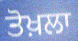
ਤੋਖ਼ਲਾ